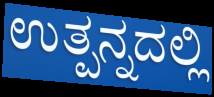
ಉತ್ಪನ್ನದಲ್ಲಿ